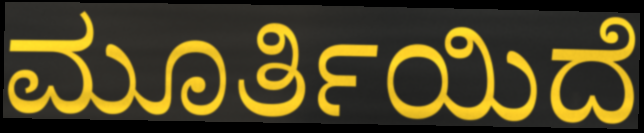
ಮೂರ್ತಿಯಿದೆ